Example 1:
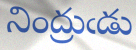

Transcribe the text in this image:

నింద్రుఁడు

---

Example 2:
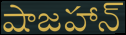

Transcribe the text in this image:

షాజహాన్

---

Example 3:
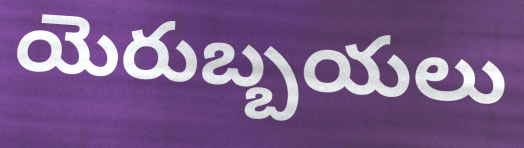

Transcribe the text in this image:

యెరుబ్బయలు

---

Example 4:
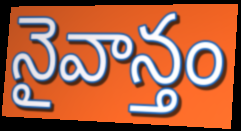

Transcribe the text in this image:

నైవాన్తం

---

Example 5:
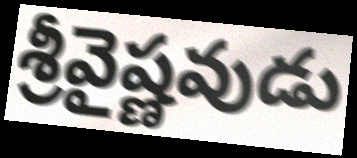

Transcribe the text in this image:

శ్రీవైష్ణవుడు